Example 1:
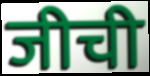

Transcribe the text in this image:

जीची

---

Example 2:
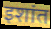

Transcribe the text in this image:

इशांत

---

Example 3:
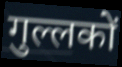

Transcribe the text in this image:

गुल्लकों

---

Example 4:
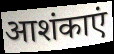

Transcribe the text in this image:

आशंकाएं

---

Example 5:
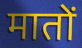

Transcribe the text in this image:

मातों